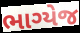
ભાગ્યેજ